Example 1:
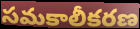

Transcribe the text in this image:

సమకాలీకరణ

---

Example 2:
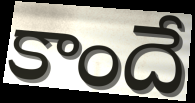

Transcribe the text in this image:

కాందే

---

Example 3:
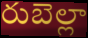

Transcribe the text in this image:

రుబెల్లా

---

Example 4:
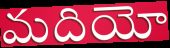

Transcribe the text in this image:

మదియో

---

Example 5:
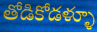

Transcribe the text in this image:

తోడికోడళ్ళూ